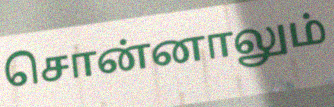
சொன்னாலும்